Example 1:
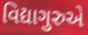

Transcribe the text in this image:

વિદ્યાગુરુએ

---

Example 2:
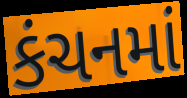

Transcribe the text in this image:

કંચનમાં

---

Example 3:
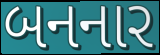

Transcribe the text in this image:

બનનાર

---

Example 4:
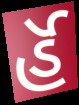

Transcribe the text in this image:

ર્હૅ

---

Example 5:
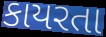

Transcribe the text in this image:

કાયરતા